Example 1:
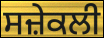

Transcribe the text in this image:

ਸਜ਼ੇਕਲੀ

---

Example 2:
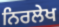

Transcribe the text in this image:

ਨਿਰਲੇਖ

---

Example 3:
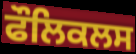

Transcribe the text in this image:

ਫੌਲਿਕਲਸ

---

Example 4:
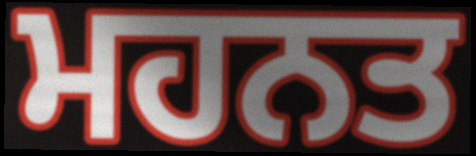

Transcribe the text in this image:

ਮਹਨਤ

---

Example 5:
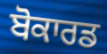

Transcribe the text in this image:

ਬੋਕਾਰਡ